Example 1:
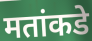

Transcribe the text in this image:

मतांकडे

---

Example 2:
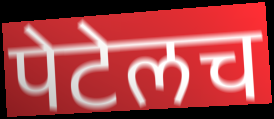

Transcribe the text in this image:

पेटेलच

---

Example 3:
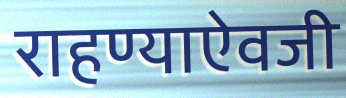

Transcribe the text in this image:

राहण्याऐवजी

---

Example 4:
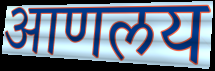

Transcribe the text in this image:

आणलय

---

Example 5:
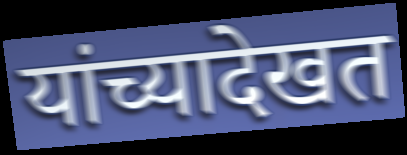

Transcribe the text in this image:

यांच्यादेखत